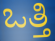
ಒತ್ತಿ